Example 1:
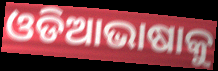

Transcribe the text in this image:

ଓଡିଆଭାଷାକୁ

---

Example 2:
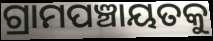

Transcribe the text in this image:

ଗ୍ରାମପଞ୍ଚାୟତକୁ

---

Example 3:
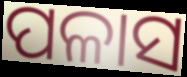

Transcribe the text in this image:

ପଳାସ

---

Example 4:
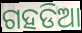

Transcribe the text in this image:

ଗହଡିଆ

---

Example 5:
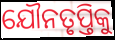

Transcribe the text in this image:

ଯୌନତୃପ୍ତିକୁ